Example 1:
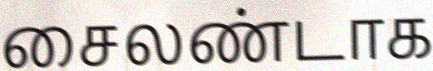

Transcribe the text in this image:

சைலண்டாக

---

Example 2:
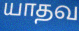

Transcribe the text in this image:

யாதவ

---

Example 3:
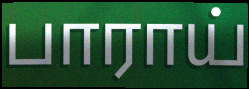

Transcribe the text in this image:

பாராய்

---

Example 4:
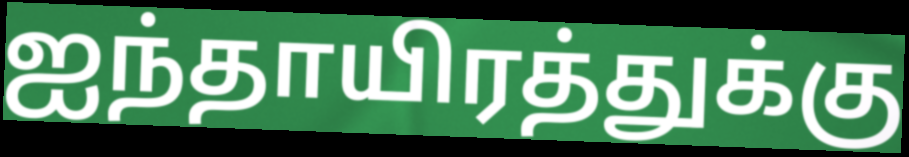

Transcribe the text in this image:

ஐந்தாயிரத்துக்கு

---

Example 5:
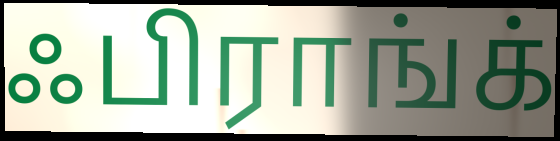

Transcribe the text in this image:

ஃபிராங்க்